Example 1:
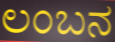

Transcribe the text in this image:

ಲಂಬನ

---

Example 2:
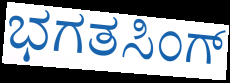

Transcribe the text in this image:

ಭಗತಸಿಂಗ್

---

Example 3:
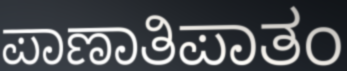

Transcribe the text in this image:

ಪಾಣಾತಿಪಾತಂ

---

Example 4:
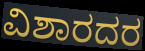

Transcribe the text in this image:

ವಿಶಾರದರ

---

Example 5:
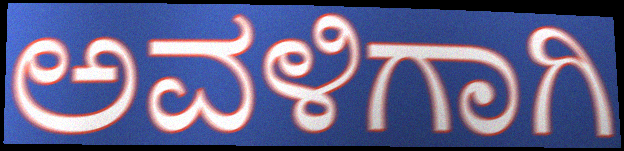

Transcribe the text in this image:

ಅವಳಿಗಾಗಿ